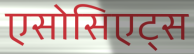
एसोसिएट्स